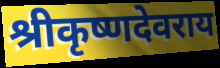
श्रीकृष्णदेवराय